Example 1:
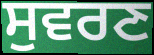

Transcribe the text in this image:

ਸੁਵਰਣ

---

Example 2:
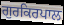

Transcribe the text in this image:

ਗੁਰਕਿਰਪਾਲ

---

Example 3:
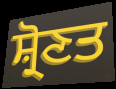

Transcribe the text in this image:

ਸ਼੍ਰੋਣਤ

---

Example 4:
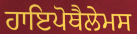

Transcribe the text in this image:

ਹਾਇਪੋਥੈਲੇਮਸ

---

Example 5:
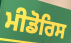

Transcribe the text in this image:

ਮੀਡੋਰਿਸ